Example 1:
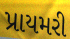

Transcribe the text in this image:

પ્રાયમરી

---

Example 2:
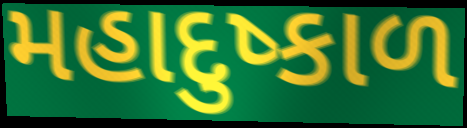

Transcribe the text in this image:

મહાદુષ્કાળ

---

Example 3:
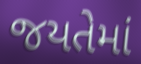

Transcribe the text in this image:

જયતેમાં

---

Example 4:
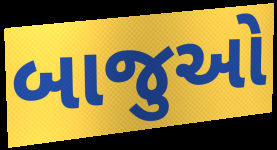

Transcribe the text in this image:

બાજુઓ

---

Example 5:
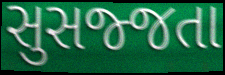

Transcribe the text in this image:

સુસજ્જતા